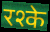
रश्के